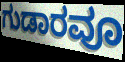
ಗುಡಾರವೂ